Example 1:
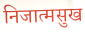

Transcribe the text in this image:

निजात्मसुख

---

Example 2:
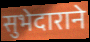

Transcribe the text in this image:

सुभेदाराने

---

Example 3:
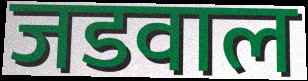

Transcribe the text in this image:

जडवाल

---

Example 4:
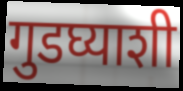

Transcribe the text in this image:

गुडघ्याशी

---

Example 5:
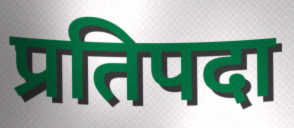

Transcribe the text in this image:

प्रतिपदा